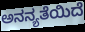
ಅನನ್ಯತೆಯಿದೆ